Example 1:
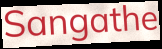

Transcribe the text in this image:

Sangathe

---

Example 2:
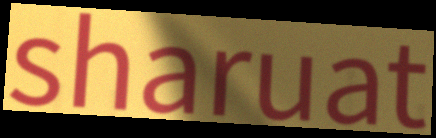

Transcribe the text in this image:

sharuat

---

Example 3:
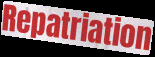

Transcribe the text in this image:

Repatriation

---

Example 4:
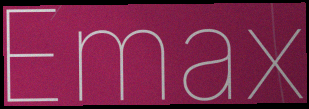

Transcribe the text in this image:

Emax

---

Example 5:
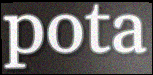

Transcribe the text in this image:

pota